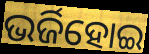
ଭର୍ଜିହୋଇ